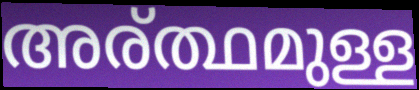
അര്ത്ഥമുള്ള